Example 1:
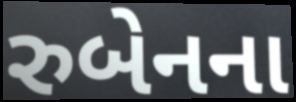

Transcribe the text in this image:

રુબેનના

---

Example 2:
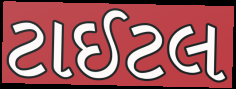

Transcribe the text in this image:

ટાઈટલ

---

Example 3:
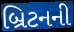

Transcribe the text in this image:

બ્રિટનની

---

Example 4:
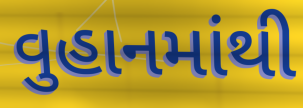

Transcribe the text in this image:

વુહાનમાંથી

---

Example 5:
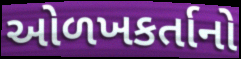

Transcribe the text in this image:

ઓળખકર્તાનો